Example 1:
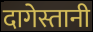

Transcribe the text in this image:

दागेस्तानी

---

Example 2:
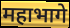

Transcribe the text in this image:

महाभागे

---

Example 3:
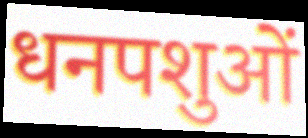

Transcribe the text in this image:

धनपशुओं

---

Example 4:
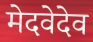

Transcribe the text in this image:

मेदवेदेव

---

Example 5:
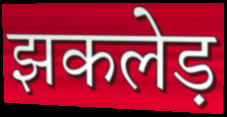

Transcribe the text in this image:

झकलेड़